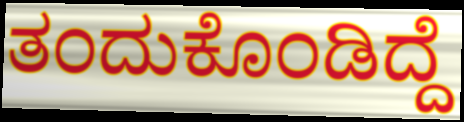
ತಂದುಕೊಂಡಿದ್ದೆ